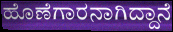
ಹೊಣೆಗಾರನಾಗಿದ್ದಾನೆ